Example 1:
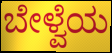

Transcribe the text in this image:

ಬೇಳ್ವೆಯ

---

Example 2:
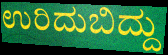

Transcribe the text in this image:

ಉರಿದುಬಿದ್ದು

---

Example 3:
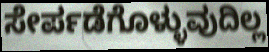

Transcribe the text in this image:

ಸೇರ್ಪಡೆಗೊಳ್ಳುವುದಿಲ್ಲ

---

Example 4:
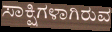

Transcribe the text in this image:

ಸಾಕ್ಷಿಗಳಾಗಿರುವ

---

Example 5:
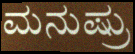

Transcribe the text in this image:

ಮನುಷ್ರು